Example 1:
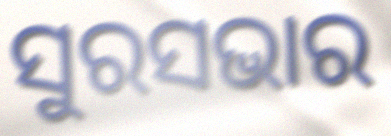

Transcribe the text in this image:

ସୁରସଭାର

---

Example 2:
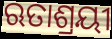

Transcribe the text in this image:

ଋତାଶ୍ରୟୀ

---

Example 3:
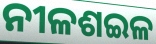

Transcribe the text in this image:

ନୀଳଶଇଳ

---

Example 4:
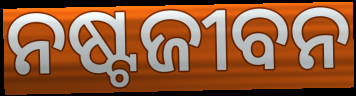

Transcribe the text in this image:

ନଷ୍ଟଜୀବନ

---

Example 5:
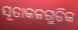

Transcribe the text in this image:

ସୂତାକଳଗୁଡିକ